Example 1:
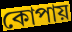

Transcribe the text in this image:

কোপায়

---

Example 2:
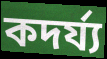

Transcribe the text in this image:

কদর্য্য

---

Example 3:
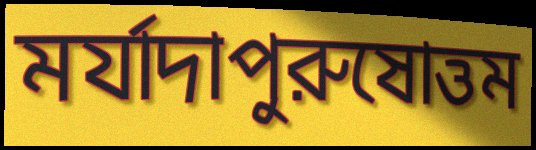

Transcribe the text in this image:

মর্যাদাপুরুষোত্তম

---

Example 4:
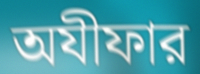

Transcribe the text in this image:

অযীফার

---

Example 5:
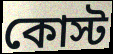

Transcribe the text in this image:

কোস্ট